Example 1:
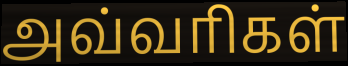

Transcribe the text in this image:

அவ்வரிகள்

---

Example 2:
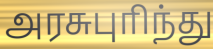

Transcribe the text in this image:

அரசுபுரிந்து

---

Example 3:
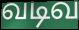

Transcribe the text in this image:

வடிவ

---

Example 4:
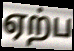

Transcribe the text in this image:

ஏற்ப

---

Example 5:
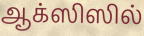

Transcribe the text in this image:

ஆக்ஸிஸில்